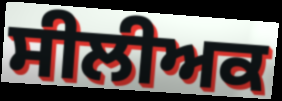
ਸੀਲੀਅਕ